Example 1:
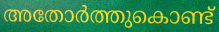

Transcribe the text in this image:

അതോർത്തുകൊണ്ട്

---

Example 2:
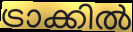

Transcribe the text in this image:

ട്രാക്കിൽ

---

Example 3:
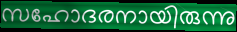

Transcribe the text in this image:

സഹോദരനായിരുന്നു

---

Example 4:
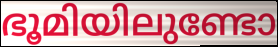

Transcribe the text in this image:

ഭൂമിയിലുണ്ടോ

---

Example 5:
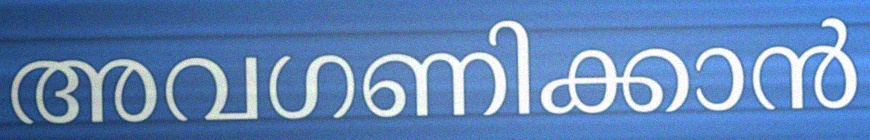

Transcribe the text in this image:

അവഗണിക്കാൻ